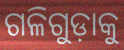
ଗଳିଗୁଡ଼ାକୁ